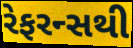
રેફરન્સથી